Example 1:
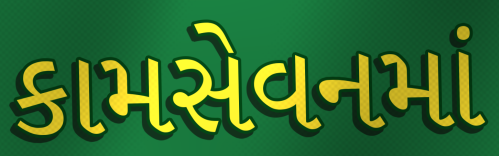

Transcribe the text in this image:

કામસેવનમાં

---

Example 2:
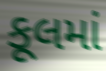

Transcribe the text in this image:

કૂલમાં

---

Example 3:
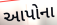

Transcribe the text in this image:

આપોના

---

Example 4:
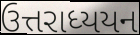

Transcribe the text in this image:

ઉત્તરાધ્યયન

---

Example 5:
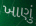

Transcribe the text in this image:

ખાણું